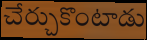
చేర్చుకొంటాడు